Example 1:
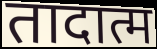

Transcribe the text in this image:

तादात्म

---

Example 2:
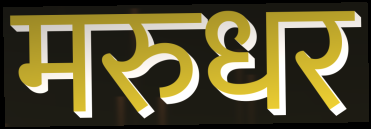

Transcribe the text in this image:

मरुधर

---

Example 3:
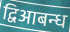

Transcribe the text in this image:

द्विआबन्ध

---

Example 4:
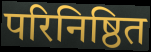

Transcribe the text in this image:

परिनिष्ठित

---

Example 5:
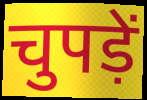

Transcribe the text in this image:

चुपड़ें